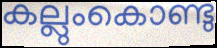
കല്ലുംകൊണ്ടു